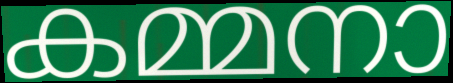
കമ്മനാ